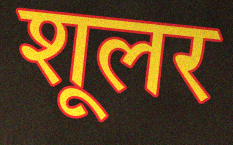
शूलर